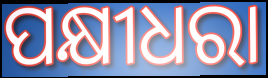
ପକ୍ଷୀଧରା